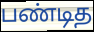
பண்டித